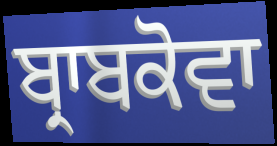
ਬ੍ਰਾਬਕੋਵਾ